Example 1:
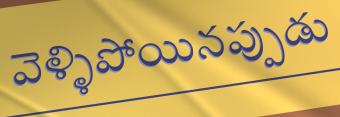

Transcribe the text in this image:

వెళ్ళిపోయినప్పుడు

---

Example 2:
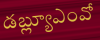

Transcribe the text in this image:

డబ్ల్యూఎంవో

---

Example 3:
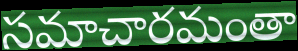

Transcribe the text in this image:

సమాచారమంతా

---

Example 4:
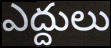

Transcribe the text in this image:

ఎద్దులు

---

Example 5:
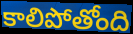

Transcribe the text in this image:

కాలిపోతోంది